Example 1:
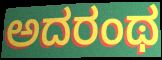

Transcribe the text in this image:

ಅದರಂಥ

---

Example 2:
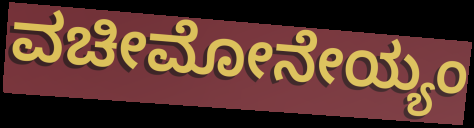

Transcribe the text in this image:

ವಚೀಮೋನೇಯ್ಯಂ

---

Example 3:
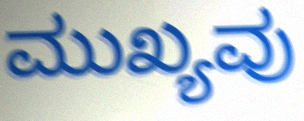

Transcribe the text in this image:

ಮುಖ್ಯವು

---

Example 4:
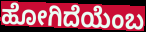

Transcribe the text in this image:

ಹೋಗಿದೆಯೆಂಬ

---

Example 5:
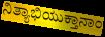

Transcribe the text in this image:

ನಿತ್ಯಾಭಿಯುಕ್ತಾನಾಂ